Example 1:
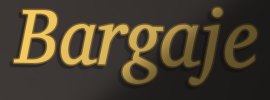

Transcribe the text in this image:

Bargaje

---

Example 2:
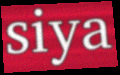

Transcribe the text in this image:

siya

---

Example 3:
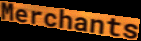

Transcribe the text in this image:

Merchants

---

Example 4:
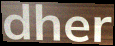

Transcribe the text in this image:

dher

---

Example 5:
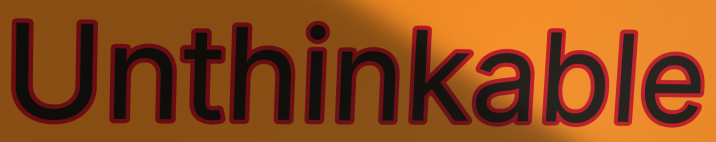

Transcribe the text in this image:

Unthinkable